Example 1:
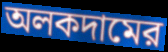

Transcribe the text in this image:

অলকদামের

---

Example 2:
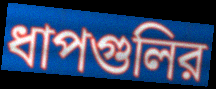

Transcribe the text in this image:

ধাপগুলির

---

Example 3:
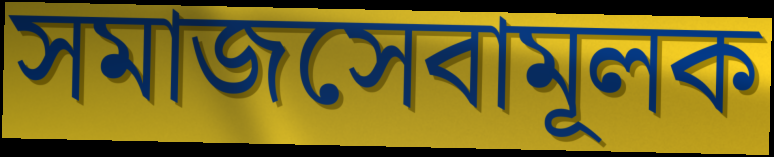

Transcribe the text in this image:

সমাজসেবামূলক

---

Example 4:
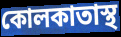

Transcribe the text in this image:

কোলকাতাস্থ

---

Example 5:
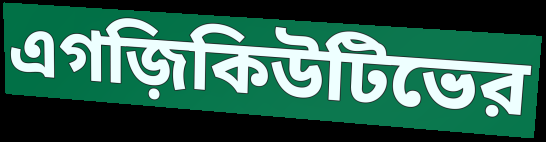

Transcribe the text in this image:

এগজ়িকিউটিভের